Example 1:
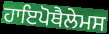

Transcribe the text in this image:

ਹਾਇਪੋਥੈਲੇਮਸ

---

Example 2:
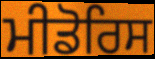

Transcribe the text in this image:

ਮੀਡੋਰਿਸ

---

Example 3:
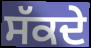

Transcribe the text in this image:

ਸੱਕਦੇ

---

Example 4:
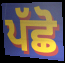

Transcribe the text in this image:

ਪੱਛੋ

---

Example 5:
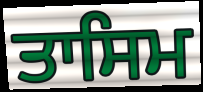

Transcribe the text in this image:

ਤਾਸਿਮ